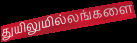
துயிலுமில்லங்களை